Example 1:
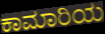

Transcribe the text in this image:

ಕಾಮಾರಿಯ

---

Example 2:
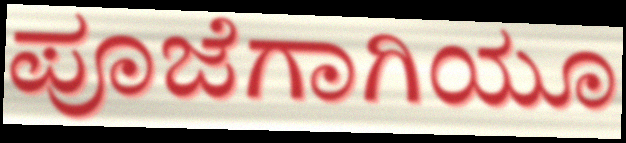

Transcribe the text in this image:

ಪೂಜೆಗಾಗಿಯೂ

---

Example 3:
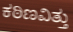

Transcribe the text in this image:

ಕಠಿಣವಿತ್ತು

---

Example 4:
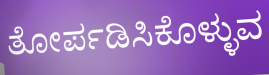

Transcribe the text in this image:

ತೋರ್ಪಡಿಸಿಕೊಳ್ಳುವ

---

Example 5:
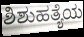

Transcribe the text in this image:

ಶಿಶುಹತ್ಯೆಯ